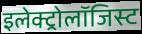
इलेक्ट्रोलॉजिस्ट